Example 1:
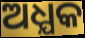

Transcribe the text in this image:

ଅଧ୍ଯକ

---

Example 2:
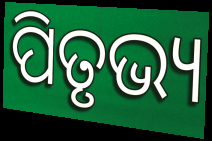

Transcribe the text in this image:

ପିତୃଭ୍ୟ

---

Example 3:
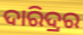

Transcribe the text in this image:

ଦାରିଦ୍ରର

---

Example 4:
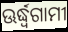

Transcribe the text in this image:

ଊର୍ଦ୍ଧ୍ୱଗାମୀ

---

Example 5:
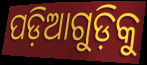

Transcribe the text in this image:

ପଡ଼ିଆଗୁଡ଼ିକୁ